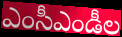
ఎంసీఎండీల